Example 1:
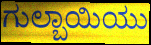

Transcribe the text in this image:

ಗುಲ್ಬಾಯಿಯು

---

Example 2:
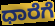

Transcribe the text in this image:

ಧಾರೆಗೆ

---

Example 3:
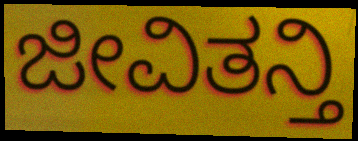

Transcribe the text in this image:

ಜೀವಿತನ್ತಿ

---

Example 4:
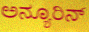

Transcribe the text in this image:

ಅನ್ಯೂರಿನ್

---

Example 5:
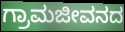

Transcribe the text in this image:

ಗ್ರಾಮಜೀವನದ